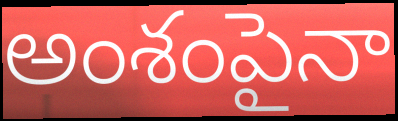
అంశంపైనా